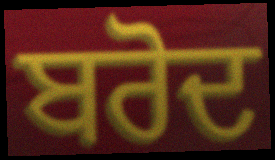
ਬਰੋਦ